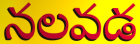
నలవడ